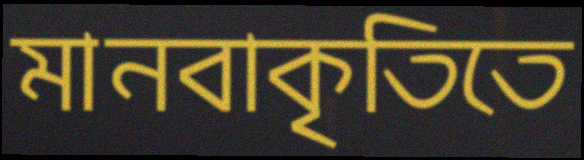
মানবাকৃতিতে